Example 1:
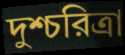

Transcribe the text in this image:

দুশ্চরিত্রা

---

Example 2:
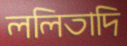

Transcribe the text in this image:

ললিতাদি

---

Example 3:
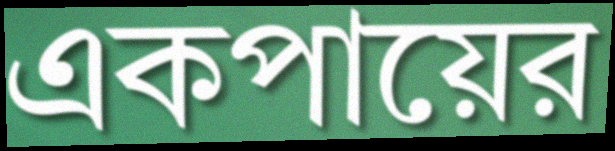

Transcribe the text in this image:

একপায়ের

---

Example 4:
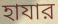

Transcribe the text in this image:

হাযার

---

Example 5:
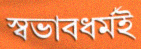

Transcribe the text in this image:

স্বভাবধর্মই